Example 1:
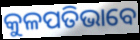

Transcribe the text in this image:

କୁଳପତିଭାବେ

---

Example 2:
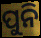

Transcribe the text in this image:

ପୁନି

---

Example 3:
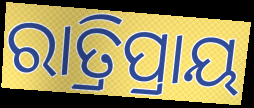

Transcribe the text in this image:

ରାତ୍ରିପ୍ରାୟ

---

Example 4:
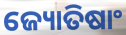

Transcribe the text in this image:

ଜ୍ୟୋତିଷାଂ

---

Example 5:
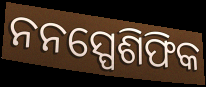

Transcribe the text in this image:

ନନସ୍ପେଶିଫିକ